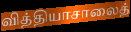
வித்தியாசாலைத்